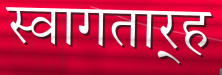
स्वागतार्ह